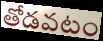
తోడవటం